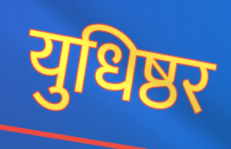
युधिष्ठर